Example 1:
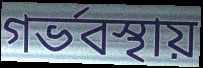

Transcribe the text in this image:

গর্ভবস্থায়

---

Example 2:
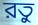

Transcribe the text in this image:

রতু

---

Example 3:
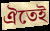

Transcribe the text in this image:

ঐতেই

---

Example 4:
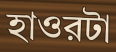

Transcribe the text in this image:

হাওরটা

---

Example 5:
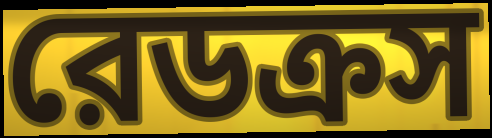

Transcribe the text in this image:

রেডক্রস